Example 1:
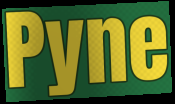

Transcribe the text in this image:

Pyne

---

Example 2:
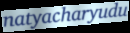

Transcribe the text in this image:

natyacharyudu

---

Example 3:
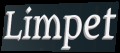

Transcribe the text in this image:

Limpet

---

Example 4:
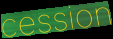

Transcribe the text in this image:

cession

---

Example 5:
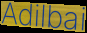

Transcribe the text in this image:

Adilbai